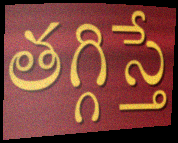
తగ్గిస్తే